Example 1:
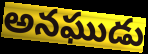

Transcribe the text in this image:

అనఘుడు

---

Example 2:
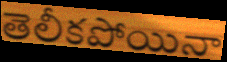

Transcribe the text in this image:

తెలీకపోయినా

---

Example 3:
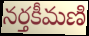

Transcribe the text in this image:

నర్తకీమణి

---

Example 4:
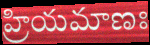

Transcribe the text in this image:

హ్రియమాణః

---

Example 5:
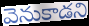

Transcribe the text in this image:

వెనుకాడని